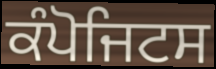
ਕੰਪੋਜਿਟਸ